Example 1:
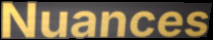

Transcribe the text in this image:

Nuances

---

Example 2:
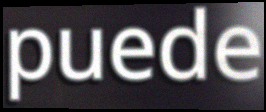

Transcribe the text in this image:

puede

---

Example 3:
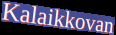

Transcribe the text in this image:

Kalaikkovan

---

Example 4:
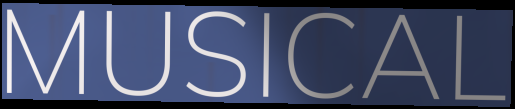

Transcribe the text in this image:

MUSICAL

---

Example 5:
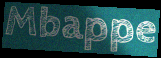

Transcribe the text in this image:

Mbappe